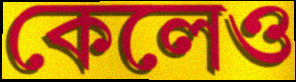
কেলেও